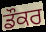
ਡੌਕਰ